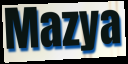
Mazya